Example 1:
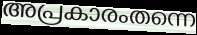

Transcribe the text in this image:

അപ്രകാരംതന്നെ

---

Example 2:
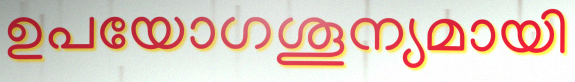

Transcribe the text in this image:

ഉപയോഗശൂന്യമായി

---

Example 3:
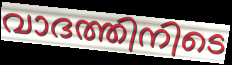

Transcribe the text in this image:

വാദത്തിനിടെ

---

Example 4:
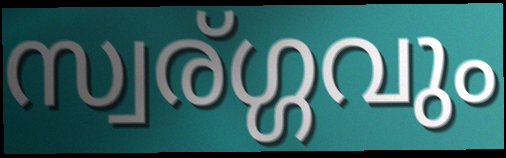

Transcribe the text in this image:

സ്വര്ഗ്ഗവും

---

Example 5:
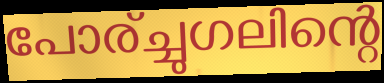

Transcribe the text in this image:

പോര്ച്ചുഗലിന്റെ